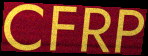
CFRP